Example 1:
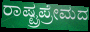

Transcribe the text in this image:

ರಾಷ್ಟ್ರಪ್ರೇಮದ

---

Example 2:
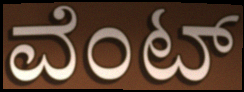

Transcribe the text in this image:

ವೆಂಟ್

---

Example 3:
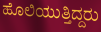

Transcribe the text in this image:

ಹೊಲಿಯುತ್ತಿದ್ದರು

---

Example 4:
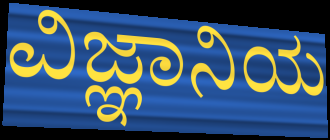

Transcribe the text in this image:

ವಿಜ್ಞಾನಿಯ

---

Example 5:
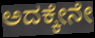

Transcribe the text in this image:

ಅದಕ್ಕೇನೇ